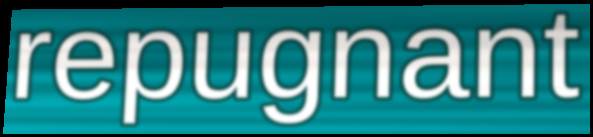
repugnant